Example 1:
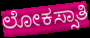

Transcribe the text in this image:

ಲೋಕಸ್ಸಾತಿ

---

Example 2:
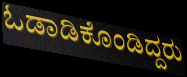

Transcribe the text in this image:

ಓಡಾಡಿಕೊಂಡಿದ್ದರು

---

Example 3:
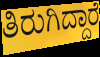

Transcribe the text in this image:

ತಿರುಗಿದ್ದಾರೆ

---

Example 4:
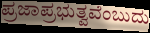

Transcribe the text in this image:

ಪ್ರಜಾಪ್ರಭುತ್ವವೆಂಬುದು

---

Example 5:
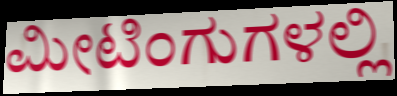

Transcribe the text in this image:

ಮೀಟಿಂಗುಗಳಲ್ಲಿ